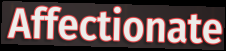
Affectionate